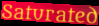
Saturated